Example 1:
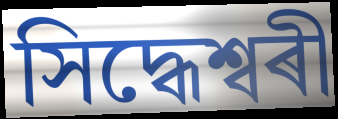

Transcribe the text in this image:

সিদ্ধেশ্বৰী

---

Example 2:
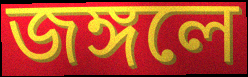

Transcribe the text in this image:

জঙ্গলে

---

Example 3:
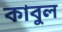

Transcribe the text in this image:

কাবুল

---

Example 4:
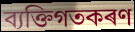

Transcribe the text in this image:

ব্যক্তিগতকৰণ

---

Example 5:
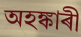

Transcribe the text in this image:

অহঙ্কাৰী